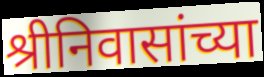
श्रीनिवासांच्या